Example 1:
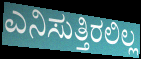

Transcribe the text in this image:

ಎನಿಸುತ್ತಿರಲಿಲ್ಲ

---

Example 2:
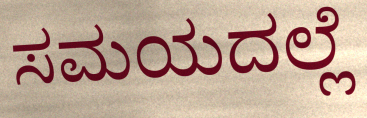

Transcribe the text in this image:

ಸಮಯದಲ್ಲೆ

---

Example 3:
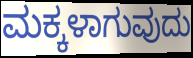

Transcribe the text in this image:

ಮಕ್ಕಳಾಗುವುದು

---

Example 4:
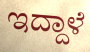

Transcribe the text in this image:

ಇದ್ದಾಳೆ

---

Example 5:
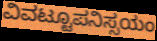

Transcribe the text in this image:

ವಿವಟ್ಟೂಪನಿಸ್ಸಯಂ